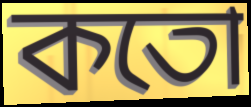
কতো